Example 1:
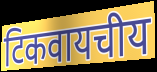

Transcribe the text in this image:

टिकवायचीय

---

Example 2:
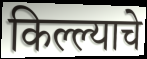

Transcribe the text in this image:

किल्ल्याचे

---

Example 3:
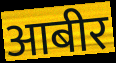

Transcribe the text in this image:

आबीर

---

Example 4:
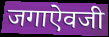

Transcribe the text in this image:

जगाऐवजी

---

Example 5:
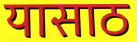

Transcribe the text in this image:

यासाठ